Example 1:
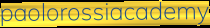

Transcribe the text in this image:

paolorossiacademy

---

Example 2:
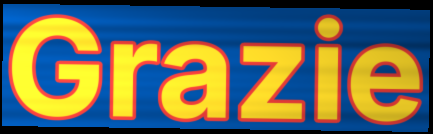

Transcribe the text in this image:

Grazie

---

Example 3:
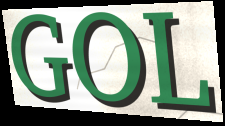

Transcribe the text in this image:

GOL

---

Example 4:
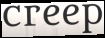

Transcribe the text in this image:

creep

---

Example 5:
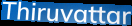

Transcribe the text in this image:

Thiruvattar